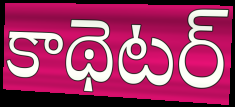
కాథెటర్